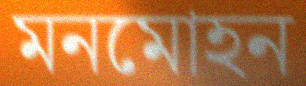
মনমোহন